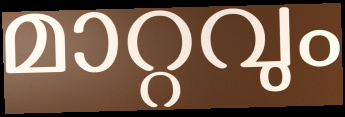
മാറ്റവും